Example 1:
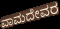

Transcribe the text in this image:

ವಾಮದೇವರ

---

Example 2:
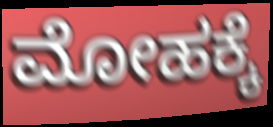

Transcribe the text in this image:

ಮೋಹಕ್ಕೆ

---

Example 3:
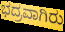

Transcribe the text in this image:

ಭದ್ರವಾಗಿರು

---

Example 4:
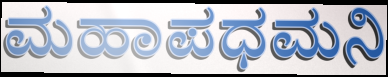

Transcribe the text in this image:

ಮಹಾಪಧಮನಿ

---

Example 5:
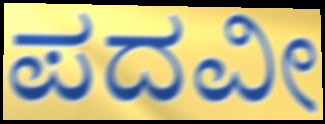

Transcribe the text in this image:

ಪದವೀ